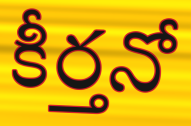
కీర్తనో